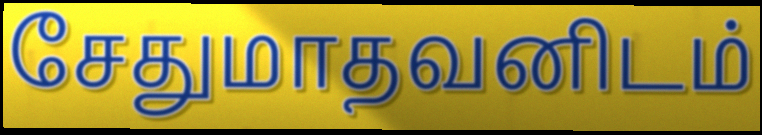
சேதுமாதவனிடம்